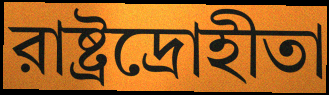
রাষ্ট্রদ্রোহীতা